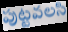
పుట్టవలసి